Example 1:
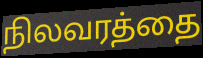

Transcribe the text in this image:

நிலவரத்தை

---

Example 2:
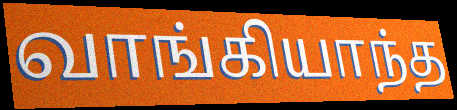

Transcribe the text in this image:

வாங்கியாந்த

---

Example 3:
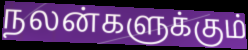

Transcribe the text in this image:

நலன்களுக்கும்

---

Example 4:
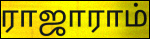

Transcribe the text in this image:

ராஜாராம்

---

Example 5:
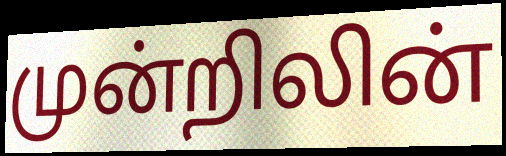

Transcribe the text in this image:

முன்றிலின்